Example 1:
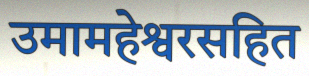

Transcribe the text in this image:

उमामहेश्वरसहित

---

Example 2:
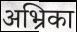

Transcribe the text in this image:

अभ्रिका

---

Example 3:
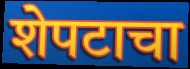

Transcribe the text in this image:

शेपटाचा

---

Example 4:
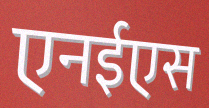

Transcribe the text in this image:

एनईएस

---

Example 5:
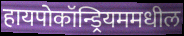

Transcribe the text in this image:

हायपोकॉन्ड्रियममधील